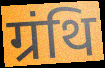
ग्रंथि